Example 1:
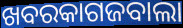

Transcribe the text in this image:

ଖବରକାଗଜବାଲା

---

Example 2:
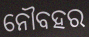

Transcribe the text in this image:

ନୌବହର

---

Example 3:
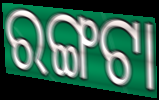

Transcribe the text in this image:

ରଙ୍ଗଟା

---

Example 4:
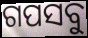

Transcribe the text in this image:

ଗପସବୁ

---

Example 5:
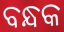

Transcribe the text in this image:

ବନ୍ଧକ